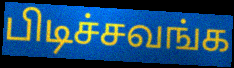
பிடிச்சவங்க